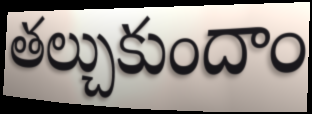
తల్చుకుందాం